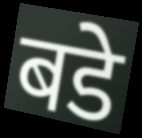
बडे